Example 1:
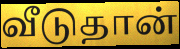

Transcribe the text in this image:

வீடுதான்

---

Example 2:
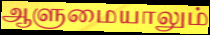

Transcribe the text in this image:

ஆளுமையாலும்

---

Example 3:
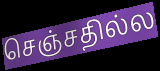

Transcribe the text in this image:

செஞ்சதில்ல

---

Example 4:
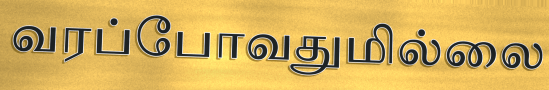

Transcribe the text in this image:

வரப்போவதுமில்லை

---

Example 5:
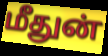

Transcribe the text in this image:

மீதுன்